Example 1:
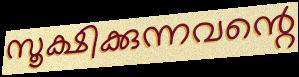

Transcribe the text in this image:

സൂക്ഷിക്കുന്നവന്റെ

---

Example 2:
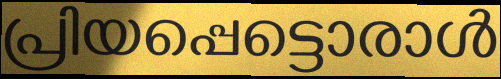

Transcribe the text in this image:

പ്രിയപ്പെട്ടൊരാൾ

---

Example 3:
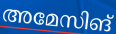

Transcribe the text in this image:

അമേസിങ്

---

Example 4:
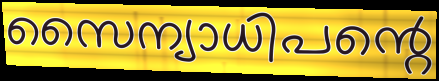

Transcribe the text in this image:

സൈന്യാധിപന്റെ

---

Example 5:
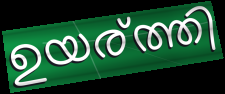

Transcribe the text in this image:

ഉയര്ത്തി